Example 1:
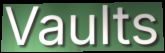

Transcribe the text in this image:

Vaults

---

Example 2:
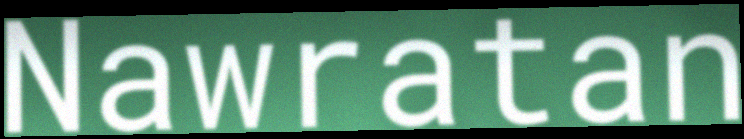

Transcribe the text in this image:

Nawratan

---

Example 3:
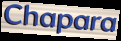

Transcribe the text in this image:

Chapara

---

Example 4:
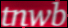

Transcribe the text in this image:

tnwb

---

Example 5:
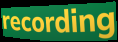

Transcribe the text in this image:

recording